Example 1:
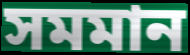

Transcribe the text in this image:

সমমান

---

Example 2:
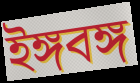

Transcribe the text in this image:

ইঙ্গবঙ্গ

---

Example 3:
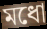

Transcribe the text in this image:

মধো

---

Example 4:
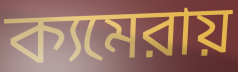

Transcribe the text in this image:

ক্যমেরায়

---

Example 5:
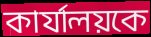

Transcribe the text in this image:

কার্যালয়কে